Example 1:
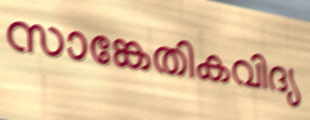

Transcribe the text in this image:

സാങ്കേതികവിദ്യ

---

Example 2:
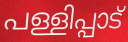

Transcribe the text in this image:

പള്ളിപ്പാട്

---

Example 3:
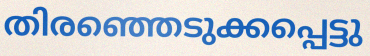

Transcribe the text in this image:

തിരഞ്ഞെടുക്കപ്പെട്ടു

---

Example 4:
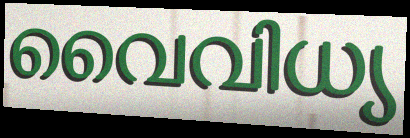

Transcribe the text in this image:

വൈവിധ്യ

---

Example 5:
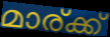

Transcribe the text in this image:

മാര്ക്ക്